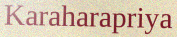
Karaharapriya